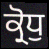
ਕ੍ਰੋਧੁ